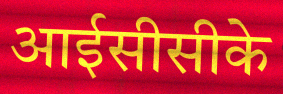
आईसीसीके